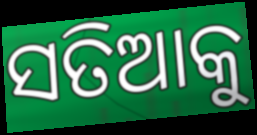
ସତିଆକୁ